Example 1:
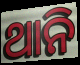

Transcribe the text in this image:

ଥାନି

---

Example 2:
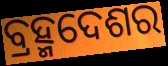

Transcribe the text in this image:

ବ୍ରହ୍ମଦେଶର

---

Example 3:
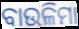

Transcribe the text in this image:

ବାଉଳିମା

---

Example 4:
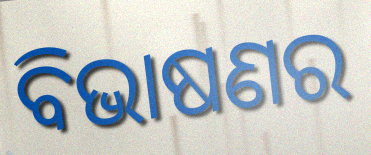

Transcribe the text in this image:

ବିଭାଷଣର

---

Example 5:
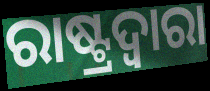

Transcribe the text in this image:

ରାଷ୍ଟ୍ରଦ୍ୱାରା